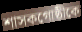
শাসকগোষ্ঠীকে